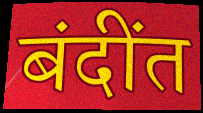
बंदींत